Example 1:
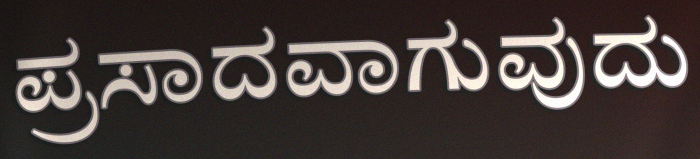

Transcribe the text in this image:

ಪ್ರಸಾದವಾಗುವುದು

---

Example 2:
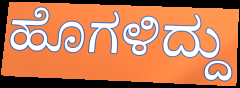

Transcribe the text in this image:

ಹೊಗಳಿದ್ದು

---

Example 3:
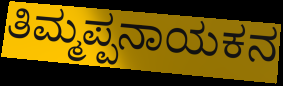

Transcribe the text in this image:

ತಿಮ್ಮಪ್ಪನಾಯಕನ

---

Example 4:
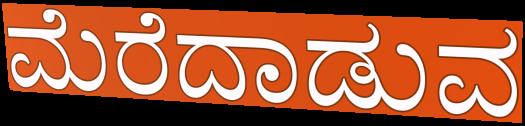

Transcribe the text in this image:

ಮೆರೆದಾಡುವ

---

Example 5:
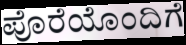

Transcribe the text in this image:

ಪೊರೆಯೊಂದಿಗೆ